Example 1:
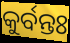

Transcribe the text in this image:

କୁର୍ବନ୍ତଃ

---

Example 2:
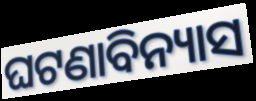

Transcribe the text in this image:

ଘଟଣାବିନ୍ୟାସ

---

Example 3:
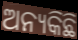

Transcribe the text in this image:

ଅନ୍ୟକିଛି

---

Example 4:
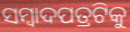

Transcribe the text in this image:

ସମ୍ବାଦପତ୍ରଟିକୁ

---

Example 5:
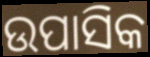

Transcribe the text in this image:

ଉପାସିକ